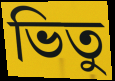
ভিতু